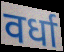
वर्धा